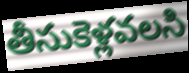
తీసుకెళ్లవలసి